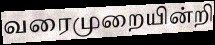
வரைமுறையின்றி